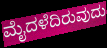
ಮೈದಳೆದಿರುವುದು